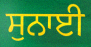
ਸੁਨਾਈ